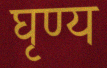
घृण्य